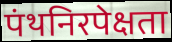
पंथनिरपेक्षता